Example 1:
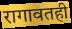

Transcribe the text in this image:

रागावतही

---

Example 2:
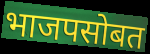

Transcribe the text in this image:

भाजपसोबत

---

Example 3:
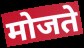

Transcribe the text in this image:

मोजते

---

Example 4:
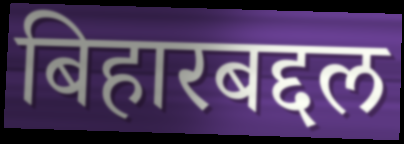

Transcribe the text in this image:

बिहारबद्दल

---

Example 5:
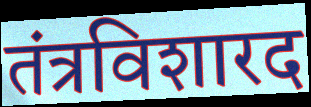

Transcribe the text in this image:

तंत्रविशारद